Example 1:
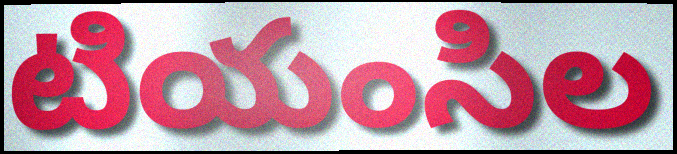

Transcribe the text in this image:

టియంసిల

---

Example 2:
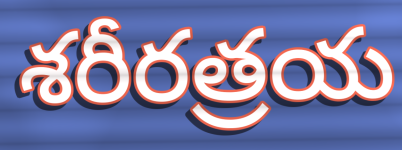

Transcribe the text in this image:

శరీరత్రయ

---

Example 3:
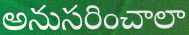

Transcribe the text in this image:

అనుసరించాలా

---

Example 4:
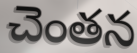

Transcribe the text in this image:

చెంతన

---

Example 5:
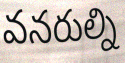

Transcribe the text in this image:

వనరుల్ని